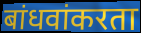
बांधवांकरता